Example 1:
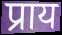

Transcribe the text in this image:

प्राय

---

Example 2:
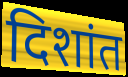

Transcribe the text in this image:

दिशांत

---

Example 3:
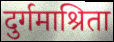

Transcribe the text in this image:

दुर्गमाश्रिता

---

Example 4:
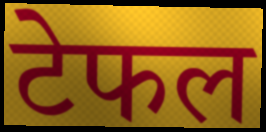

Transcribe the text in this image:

टेफल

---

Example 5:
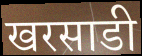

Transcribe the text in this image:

खरसाडी